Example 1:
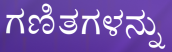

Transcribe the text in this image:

ಗಣಿತಗಳನ್ನು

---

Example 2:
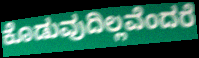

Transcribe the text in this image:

ಕೊಡುವುದಿಲ್ಲವೆಂದರೆ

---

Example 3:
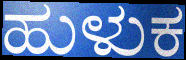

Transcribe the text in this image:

ಹುಳುಕ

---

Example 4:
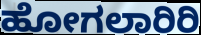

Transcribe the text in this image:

ಹೋಗಲಾರಿರಿ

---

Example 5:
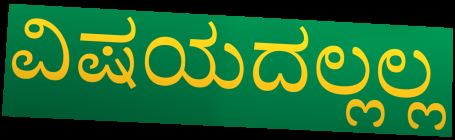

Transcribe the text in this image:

ವಿಷಯದಲ್ಲಲ್ಲ